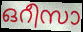
ഒറീസാ